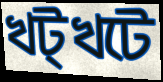
খট্‌খটে